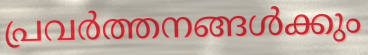
പ്രവർത്തനങ്ങൾക്കും